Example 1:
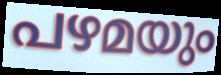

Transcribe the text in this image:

പഴമയും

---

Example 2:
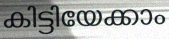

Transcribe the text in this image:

കിട്ടിയേക്കാം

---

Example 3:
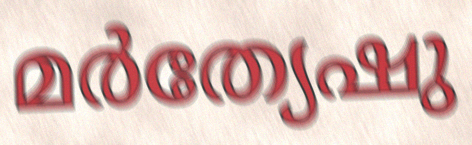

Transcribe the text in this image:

മർത്യേഷു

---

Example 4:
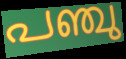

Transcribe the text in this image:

പഞ്ചു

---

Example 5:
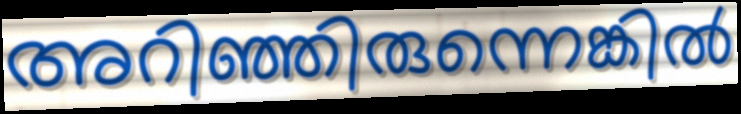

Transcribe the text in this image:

അറിഞ്ഞിരുന്നെങ്കിൽ